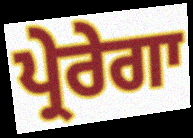
ਪ੍ਰੇਰੇਗਾ